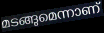
മടങ്ങുമെന്നാണ്